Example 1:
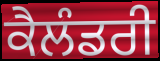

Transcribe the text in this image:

ਕੈਲੰਡਰੀ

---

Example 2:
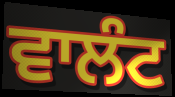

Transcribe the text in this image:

ਵਾਲੰਟ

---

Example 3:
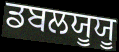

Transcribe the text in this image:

ਡਬਲਯੂਯੂ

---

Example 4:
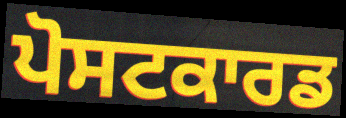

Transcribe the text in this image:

ਪੋਸਟਕਾਰਡ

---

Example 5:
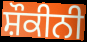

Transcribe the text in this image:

ਸ਼ੌਕੀਨੀ